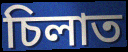
চিলাত